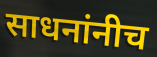
साधनांनीच